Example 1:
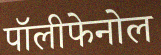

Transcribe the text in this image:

पॉलीफेनोल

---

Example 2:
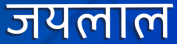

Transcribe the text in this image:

जयलाल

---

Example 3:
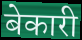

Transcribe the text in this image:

बेकारी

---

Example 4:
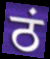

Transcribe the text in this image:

ठं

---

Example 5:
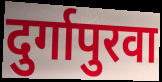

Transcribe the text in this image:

दुर्गापुरवा